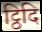
ट्ठिदि